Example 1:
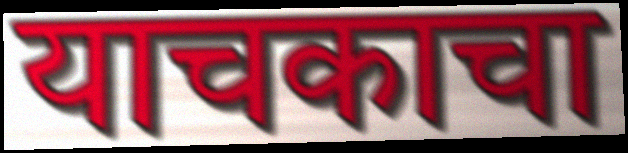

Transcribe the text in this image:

याचकाचा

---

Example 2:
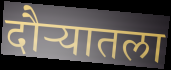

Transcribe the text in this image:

दौऱ्यातला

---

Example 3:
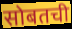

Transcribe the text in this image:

सोबतची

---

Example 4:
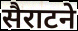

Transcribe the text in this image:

सैराटने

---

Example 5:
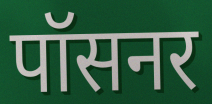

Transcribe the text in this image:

पॉसनर